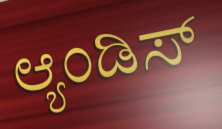
ಆ್ಯಂಡಿಸ್